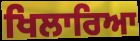
ਖਿਲਾਰਿਆ